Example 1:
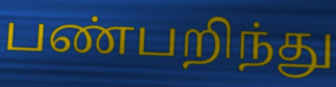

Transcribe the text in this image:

பண்பறிந்து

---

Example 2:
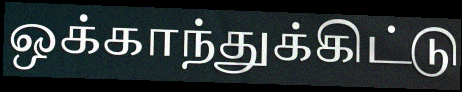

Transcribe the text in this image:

ஒக்காந்துக்கிட்டு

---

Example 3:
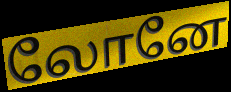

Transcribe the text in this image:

லோனே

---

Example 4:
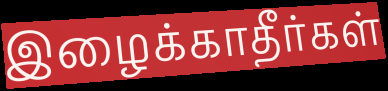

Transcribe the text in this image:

இழைக்காதீர்கள்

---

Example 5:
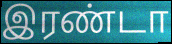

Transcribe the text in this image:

இரண்டா